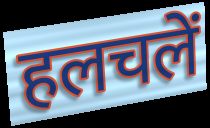
हलचलें